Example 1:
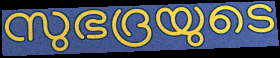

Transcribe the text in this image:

സുഭദ്രയുടെ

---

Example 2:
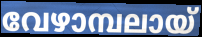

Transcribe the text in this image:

വേഴാമ്പലായ്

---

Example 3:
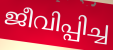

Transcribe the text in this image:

ജീവിപ്പിച്ച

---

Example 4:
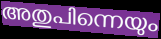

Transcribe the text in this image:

അതുപിന്നെയും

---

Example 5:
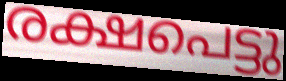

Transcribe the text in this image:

രക്ഷപെട്ടു